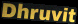
Dhruvit